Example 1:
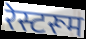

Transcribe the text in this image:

रेस्टरूम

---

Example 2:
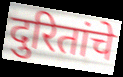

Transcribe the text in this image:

दुरितांचे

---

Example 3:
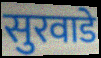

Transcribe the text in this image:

सुरवाडे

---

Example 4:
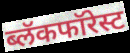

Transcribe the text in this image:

ब्लॅकफॉरेस्ट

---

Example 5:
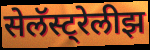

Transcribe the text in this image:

सेलॅस्ट्रेलीझ